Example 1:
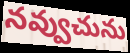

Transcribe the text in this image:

నవ్వుచును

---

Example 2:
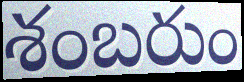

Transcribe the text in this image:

శంబరుం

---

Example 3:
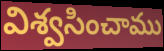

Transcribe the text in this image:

విశ్వసించాము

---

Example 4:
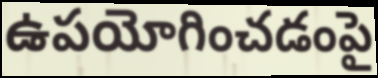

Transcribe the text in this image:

ఉపయోగించడంపై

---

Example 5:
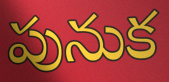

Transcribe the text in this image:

పునుక